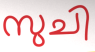
സുചി